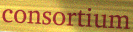
consortium